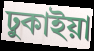
ঢুকাইয়া